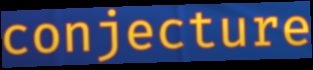
conjecture